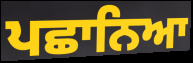
ਪਛਾਨਿਆ